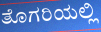
ತೊಗರಿಯಲ್ಲಿ